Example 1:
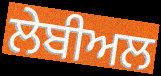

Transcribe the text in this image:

ਲੇਬੀਅਲ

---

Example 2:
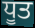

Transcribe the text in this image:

ਧੂਤ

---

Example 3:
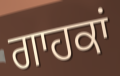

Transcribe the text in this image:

ਗਾਹਕਾਂ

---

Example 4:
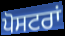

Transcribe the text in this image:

ਪੋਸਟਰਾਂ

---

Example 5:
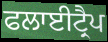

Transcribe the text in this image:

ਫਲਾਈਟ੍ਰੈਪ